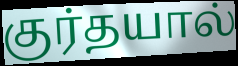
குர்தயால்